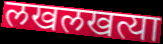
लखलखत्या